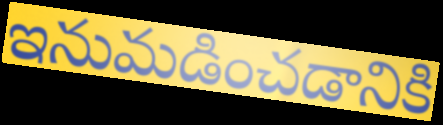
ఇనుమడించడానికి